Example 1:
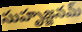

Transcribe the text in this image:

సుహృజ్జనమ్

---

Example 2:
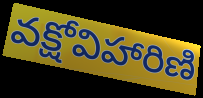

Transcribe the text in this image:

వక్షోవిహారిణి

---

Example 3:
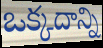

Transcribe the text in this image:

ఒక్కదాన్ని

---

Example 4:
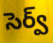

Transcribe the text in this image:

సెర్వ్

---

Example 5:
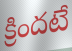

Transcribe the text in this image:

క్రిందటే